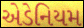
એડેનિયમ